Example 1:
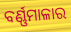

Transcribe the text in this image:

ବର୍ଣ୍ଣମାଳାର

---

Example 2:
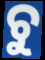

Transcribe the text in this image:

ଚୁ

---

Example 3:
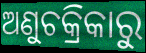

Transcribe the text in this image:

ଅଣୁଚକ୍ରିକାରୁ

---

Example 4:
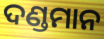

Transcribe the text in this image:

ଦଣ୍ଡମାନ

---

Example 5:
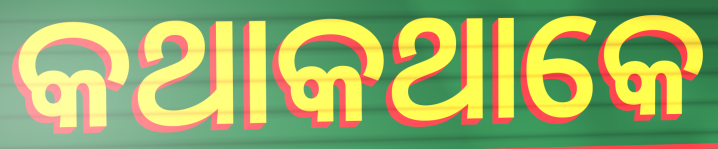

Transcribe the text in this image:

କଥାକଥାକେ